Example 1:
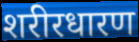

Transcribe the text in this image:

शरीरधारण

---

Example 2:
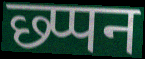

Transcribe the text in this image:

छ्प्पन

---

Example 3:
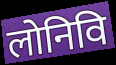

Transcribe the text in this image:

लोनिवि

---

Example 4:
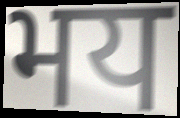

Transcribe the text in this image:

भय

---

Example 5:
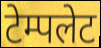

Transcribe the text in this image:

टेम्पलेट